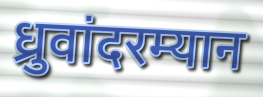
ध्रुवांदरम्यान